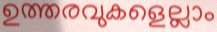
ഉത്തരവുകളെല്ലാം